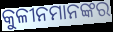
କୁଳୀନମାନଙ୍କର